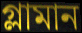
গ্লামান